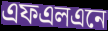
এফএলএনে